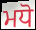
ਮਧੋ